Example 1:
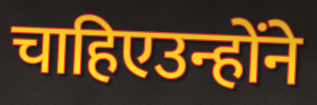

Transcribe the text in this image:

चाहिएउन्होंने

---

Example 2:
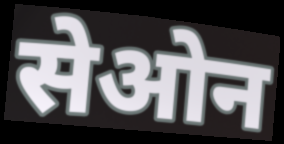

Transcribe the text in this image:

सेओन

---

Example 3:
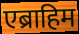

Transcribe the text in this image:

एब्राहिम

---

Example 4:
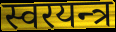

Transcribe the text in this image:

स्वरयन्त्र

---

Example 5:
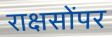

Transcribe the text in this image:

राक्षसोंपर